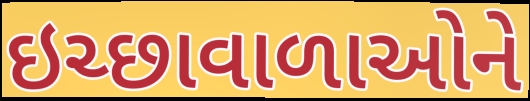
ઇચ્છાવાળાઓને